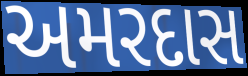
અમરદાસ